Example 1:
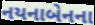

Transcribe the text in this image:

નયનાબેનના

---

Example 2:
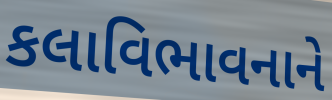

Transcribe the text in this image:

કલાવિભાવનાને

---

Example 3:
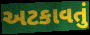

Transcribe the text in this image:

અટકાવતું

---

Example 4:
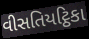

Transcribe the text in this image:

વીસતિયટ્ઠિકા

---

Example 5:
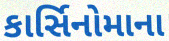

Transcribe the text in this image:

કાર્સિનોમાના